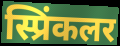
स्प्रिंकलर